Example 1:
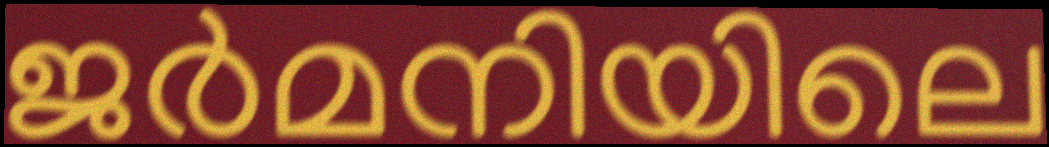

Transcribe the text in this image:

ജർമനിയിലെ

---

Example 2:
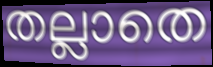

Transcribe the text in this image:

തല്ലാതെ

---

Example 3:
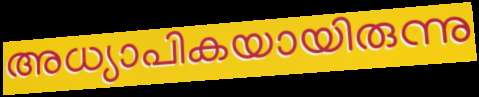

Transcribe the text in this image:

അധ്യാപികയായിരുന്നു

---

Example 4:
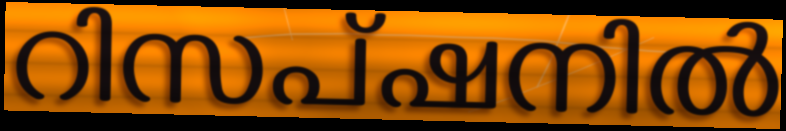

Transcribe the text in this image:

റിസപ്ഷനിൽ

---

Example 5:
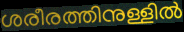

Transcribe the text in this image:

ശരീരത്തിനുള്ളിൽ